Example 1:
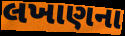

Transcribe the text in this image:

લખાણના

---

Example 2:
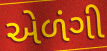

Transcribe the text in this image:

એળંગી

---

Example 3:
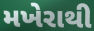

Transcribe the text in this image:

મખેરાથી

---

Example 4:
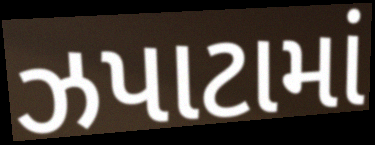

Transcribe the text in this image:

ઝપાટામાં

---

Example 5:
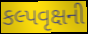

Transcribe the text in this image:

કલ્પવૃક્ષની